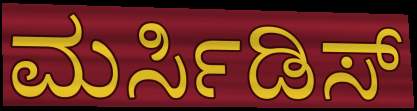
ಮರ್ಸಿಡಿಸ್